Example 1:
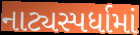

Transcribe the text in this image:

નાટ્યસ્પર્ધામાં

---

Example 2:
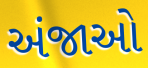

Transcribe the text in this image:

અંજાઓ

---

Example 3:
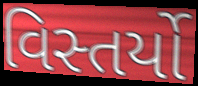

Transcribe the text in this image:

વિસ્તર્યો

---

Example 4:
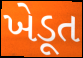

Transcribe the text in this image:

ખેડૂત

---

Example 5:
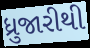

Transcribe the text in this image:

ધ્રુજારીથી